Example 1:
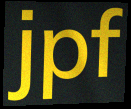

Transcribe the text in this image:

jpf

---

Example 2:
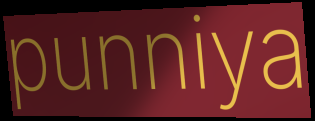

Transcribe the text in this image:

punniya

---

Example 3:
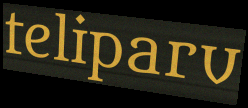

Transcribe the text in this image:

teliparu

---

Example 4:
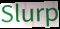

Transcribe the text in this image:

Slurp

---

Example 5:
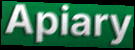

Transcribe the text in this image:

Apiary